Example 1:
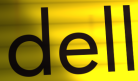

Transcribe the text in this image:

dell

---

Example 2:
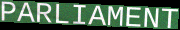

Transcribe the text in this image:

PARLIAMENT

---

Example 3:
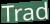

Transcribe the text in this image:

Trad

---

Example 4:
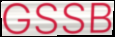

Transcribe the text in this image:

GSSB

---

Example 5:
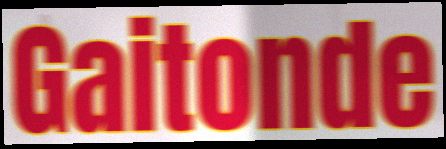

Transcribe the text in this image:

Gaitonde